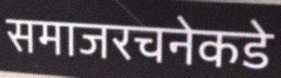
समाजरचनेकडे